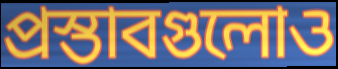
প্রস্তাবগুলোও